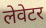
लेवेटर